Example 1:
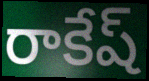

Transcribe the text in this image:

రాకేష్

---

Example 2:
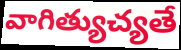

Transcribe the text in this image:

వాగిత్యుచ్యతే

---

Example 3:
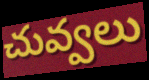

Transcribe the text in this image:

చువ్వలు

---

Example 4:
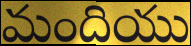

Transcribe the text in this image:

మందియు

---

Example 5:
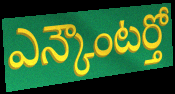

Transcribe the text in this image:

ఎన్కౌంటర్తో